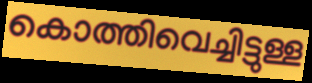
കൊത്തിവെച്ചിട്ടുള്ള